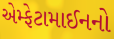
એમ્ફેટામાઈનનો